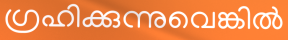
ഗ്രഹിക്കുന്നുവെങ്കിൽ